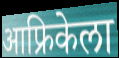
आफ्रिकेला